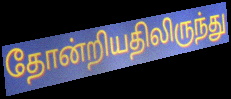
தோன்றியதிலிருந்து